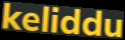
keliddu